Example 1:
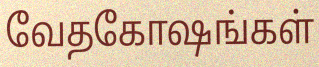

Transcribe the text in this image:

வேதகோஷங்கள்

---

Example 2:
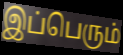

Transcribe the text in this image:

இப்பெரும்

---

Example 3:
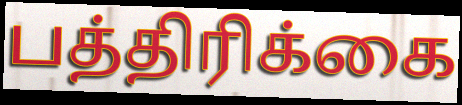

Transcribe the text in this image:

பத்திரிக்கை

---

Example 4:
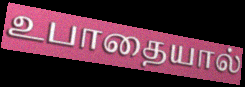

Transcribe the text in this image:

உபாதையால்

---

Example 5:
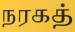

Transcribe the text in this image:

நரகத்